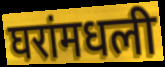
घरांमधली